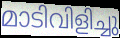
മാടിവിളിച്ചു